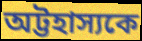
অট্টহাস্যকে